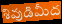
శివుడిమీద